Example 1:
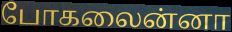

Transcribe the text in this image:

போகலைன்னா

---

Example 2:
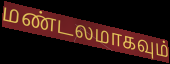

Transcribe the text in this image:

மண்டலமாகவும்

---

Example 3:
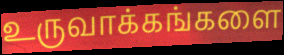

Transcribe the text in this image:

உருவாக்கங்களை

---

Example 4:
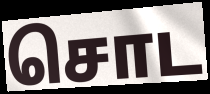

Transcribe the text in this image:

சொட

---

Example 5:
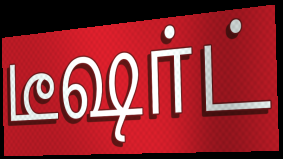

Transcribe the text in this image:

டீஷர்ட்